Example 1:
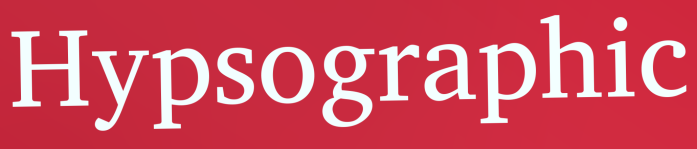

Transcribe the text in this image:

Hypsographic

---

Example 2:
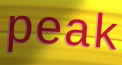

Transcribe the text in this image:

peak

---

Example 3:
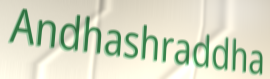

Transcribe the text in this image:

Andhashraddha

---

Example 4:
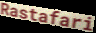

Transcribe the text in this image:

Rastafari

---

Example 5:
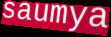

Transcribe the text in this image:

saumya